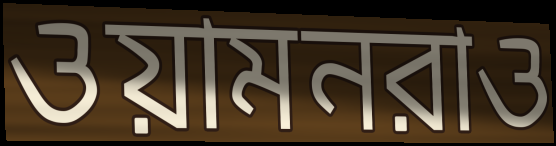
ওয়ামনরাও